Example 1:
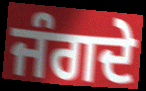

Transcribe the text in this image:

ਜੰਗਦੇ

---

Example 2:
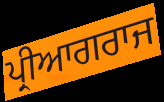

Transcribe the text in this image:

ਪ੍ਰੀਆਗਰਾਜ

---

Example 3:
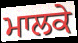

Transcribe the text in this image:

ਮਾਲਕੇ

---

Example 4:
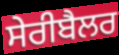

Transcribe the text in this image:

ਸੇਰੀਬੈਲਰ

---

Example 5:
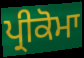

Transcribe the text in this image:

ਪ੍ਰੀਕੋਮਾ